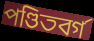
পণ্ডিতবর্গ